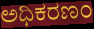
ಅಧಿಕರಣಂ